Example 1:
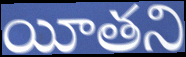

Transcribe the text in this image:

యీతని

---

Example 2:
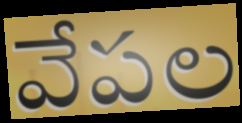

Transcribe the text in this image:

వేపల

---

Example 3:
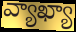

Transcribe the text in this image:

వ్యాఖ్యా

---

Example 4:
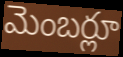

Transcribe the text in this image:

మెంబర్లూ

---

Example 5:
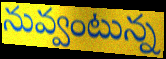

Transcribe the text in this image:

నువ్వంటున్న